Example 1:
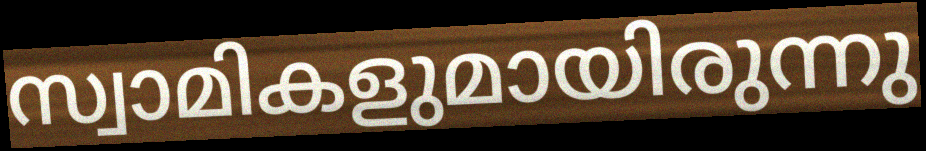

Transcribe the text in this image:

സ്വാമികളുമായിരുന്നു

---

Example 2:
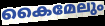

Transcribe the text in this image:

കൈമേലും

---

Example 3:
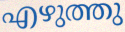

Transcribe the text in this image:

എഴുത്തു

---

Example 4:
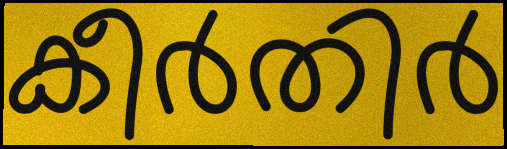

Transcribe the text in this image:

കീർതിർ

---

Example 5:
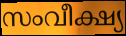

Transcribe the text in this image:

സംവീക്ഷ്യ